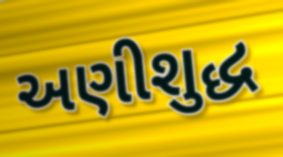
અણીશુદ્ધ